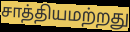
சாத்தியமற்றது